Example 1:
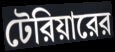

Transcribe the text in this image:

টেরিয়ারের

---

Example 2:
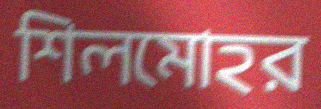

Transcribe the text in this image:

শিলমোহর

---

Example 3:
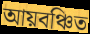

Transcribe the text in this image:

আয়বঞ্চিত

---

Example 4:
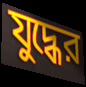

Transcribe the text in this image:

যুদ্ধের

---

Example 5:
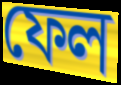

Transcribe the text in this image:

ফেল